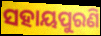
ସହାୟପୁରଣି